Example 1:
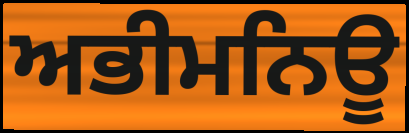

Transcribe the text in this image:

ਅਭੀਮਨਿਊ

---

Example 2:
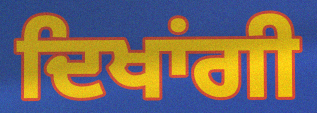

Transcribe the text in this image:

ਦਿਖਾਂਗੀ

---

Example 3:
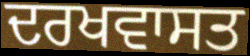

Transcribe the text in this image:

ਦਰਖਵਾਸਤ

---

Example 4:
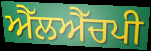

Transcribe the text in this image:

ਐੱਲਐੱਚਪੀ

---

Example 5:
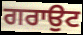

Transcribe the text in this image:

ਗਰਾਉਟ